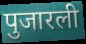
पुजारली